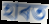
হাৰত